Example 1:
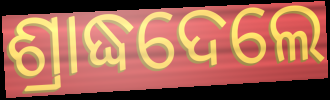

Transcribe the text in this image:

ଶ୍ରାଦ୍ଧଦେଲେ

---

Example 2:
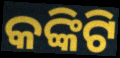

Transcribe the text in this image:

କଙ୍କିଟି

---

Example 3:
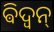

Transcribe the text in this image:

ଵିଦ୍ଵନ୍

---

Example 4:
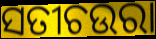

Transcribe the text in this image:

ସତୀଚଉରା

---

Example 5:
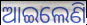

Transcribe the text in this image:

ଆଇଲେଣି